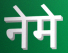
नेमे